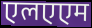
एलएएम